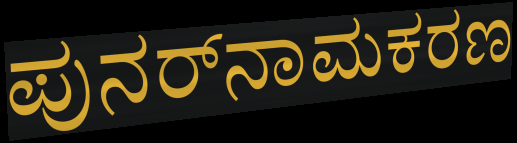
ಪುನರ್‌ನಾಮಕರಣ